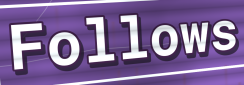
Follows